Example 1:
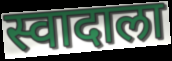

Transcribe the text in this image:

स्वादाला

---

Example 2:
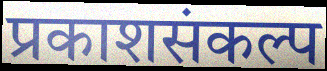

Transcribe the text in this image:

प्रकाशसंकल्प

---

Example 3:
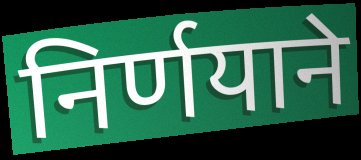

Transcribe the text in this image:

निर्णयाने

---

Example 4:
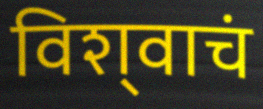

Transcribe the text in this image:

विश्वाचं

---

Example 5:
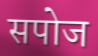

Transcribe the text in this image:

सपोज